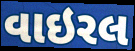
વાઇરલ